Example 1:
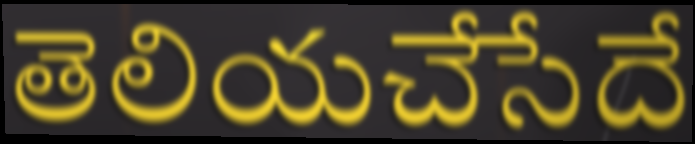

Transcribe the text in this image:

తెలియచేసేదే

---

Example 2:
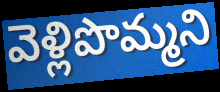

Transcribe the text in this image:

వెళ్లిపొమ్మని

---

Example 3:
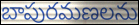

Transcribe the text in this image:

బాపురమణలను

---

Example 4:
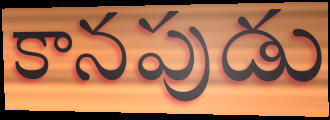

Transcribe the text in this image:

కానపుడు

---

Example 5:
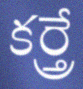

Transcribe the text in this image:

కర్త్రే